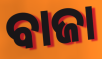
ବାଜା